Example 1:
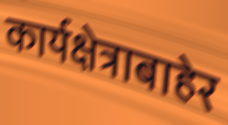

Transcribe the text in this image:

कार्यक्षेत्राबाहेर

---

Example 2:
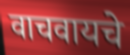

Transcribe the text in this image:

वाचवायचे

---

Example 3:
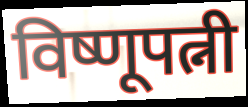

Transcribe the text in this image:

विष्णूपत्नी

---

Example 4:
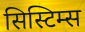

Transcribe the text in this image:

सिस्टिम्स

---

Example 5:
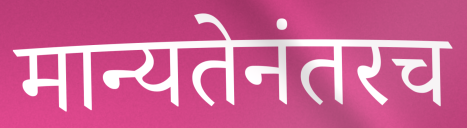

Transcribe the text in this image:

मान्यतेनंतरच